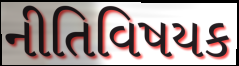
નીતિવિષયક